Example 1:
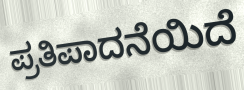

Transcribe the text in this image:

ಪ್ರತಿಪಾದನೆಯಿದೆ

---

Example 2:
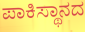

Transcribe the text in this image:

ಪಾಕಿಸ್ಥಾನದ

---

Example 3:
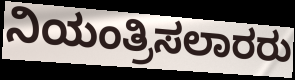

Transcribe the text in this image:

ನಿಯಂತ್ರಿಸಲಾರರು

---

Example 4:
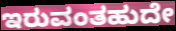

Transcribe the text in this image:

ಇರುವಂತಹುದೇ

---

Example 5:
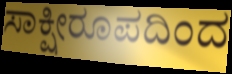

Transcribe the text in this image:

ಸಾಕ್ಷೀರೂಪದಿಂದ